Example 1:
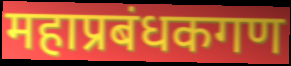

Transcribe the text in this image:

महाप्रबंधकगण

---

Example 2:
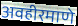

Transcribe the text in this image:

अवहीरमाणे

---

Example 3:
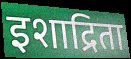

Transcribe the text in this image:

इशाद्रिता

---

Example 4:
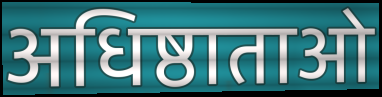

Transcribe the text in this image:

अधिष्ठाताओ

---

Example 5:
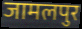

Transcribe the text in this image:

जामलपुर